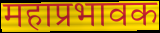
महाप्रभावक